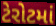
ટેરોટમાં